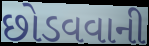
છોડવવાની